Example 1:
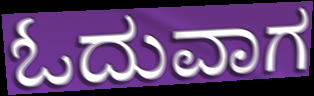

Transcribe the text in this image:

ಓದುವಾಗ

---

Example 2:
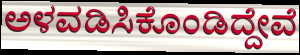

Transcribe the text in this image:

ಅಳವಡಿಸಿಕೊಂಡಿದ್ದೇವೆ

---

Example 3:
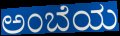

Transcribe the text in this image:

ಅಂಬೆಯ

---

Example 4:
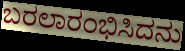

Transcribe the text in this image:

ಬರಲಾರಂಭಿಸಿದನು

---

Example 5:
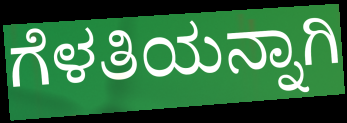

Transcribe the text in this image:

ಗೆಳತಿಯನ್ನಾಗಿ